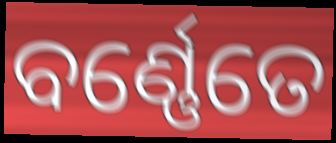
ବର୍ଣ୍ଣେତେ